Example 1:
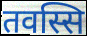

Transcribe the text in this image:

तवस्सि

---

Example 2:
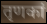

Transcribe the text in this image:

तृणकां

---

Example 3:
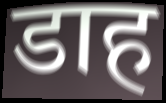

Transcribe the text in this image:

डाह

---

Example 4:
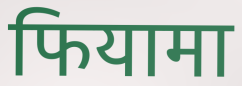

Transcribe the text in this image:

फियामा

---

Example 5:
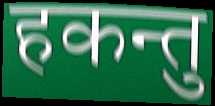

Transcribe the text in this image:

हकन्तु